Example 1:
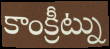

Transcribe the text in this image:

కాంక్రీట్ను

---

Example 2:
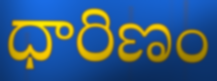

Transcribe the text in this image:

ధారిణం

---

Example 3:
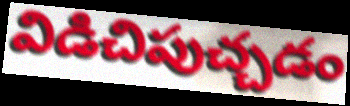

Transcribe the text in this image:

విడిచిపుచ్చడం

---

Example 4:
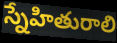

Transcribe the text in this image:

స్నేహితురాలి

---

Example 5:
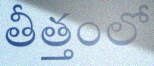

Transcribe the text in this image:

తీత్తంలో